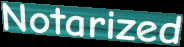
Notarized